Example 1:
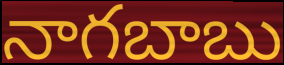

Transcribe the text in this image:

నాగబాబు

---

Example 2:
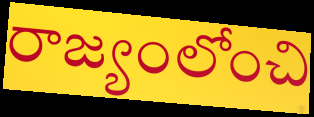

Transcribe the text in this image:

రాజ్యంలోంచి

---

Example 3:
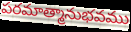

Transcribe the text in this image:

పరమాత్మానుభవము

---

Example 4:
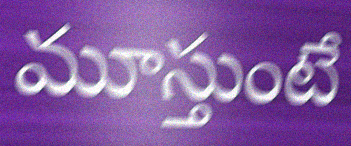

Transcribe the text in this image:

మూస్తుంటే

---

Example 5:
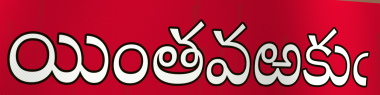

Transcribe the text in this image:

యింతవఱకుఁ